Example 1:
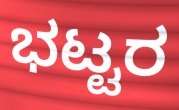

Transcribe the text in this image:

ಭಟ್ಟರ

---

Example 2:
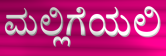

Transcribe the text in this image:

ಮಲ್ಲಿಗೆಯಲಿ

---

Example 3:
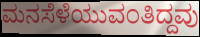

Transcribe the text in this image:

ಮನಸೆಳೆಯುವಂತಿದ್ದವು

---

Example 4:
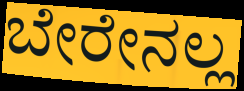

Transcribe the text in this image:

ಬೇರೇನಲ್ಲ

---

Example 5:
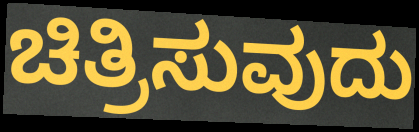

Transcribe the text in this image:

ಚಿತ್ರಿಸುವುದು